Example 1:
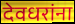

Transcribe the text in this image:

देवधरांना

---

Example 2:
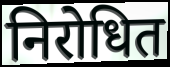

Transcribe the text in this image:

निरोधित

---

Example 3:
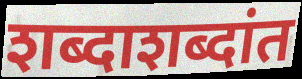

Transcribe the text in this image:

शब्दाशब्दांत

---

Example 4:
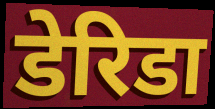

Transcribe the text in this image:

डेरिडा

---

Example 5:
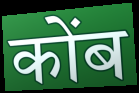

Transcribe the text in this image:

कोंब